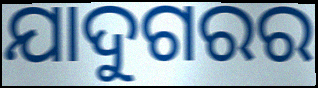
ଯାଦୁଗରର